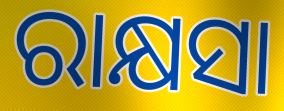
ରାକ୍ଷସା